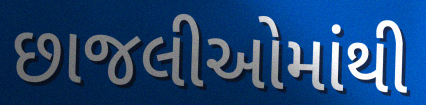
છાજલીઓમાંથી